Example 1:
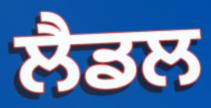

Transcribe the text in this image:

ਲੈਡਲ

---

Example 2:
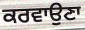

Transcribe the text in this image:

ਕਰਵਾਉਣਾ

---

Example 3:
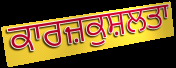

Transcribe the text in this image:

ਕਾਰਜ਼ਕੁਸ਼ਲਤਾ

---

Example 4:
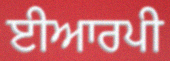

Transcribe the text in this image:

ਈਆਰਪੀ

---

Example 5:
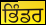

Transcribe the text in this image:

ਭਿੰਡਰ